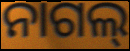
ନାଗଲ୍